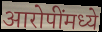
आरोपींमध्ये